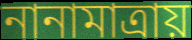
নানামাত্রায়